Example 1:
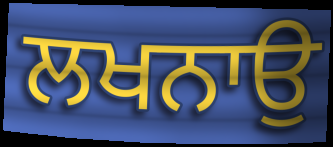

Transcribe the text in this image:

ਲਖਨਾਉ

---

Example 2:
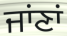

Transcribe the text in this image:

ਜਾਂਣਾਂ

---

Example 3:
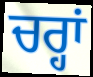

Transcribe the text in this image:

ਚਰ੍ਹਾਂ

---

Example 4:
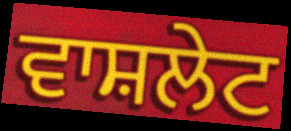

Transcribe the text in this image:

ਵਾਸ਼ਲੇਟ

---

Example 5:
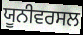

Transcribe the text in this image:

ਯੂਨੀਵਰਸਲ